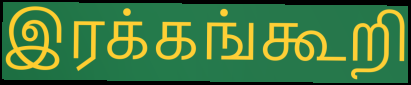
இரக்கங்கூறி